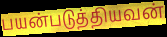
பயன்படுத்தியவன்